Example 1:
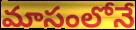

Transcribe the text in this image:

మాసంలోనే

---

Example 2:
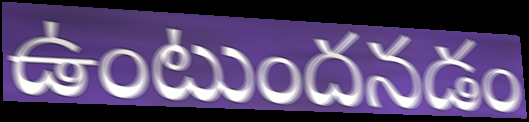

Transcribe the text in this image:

ఉంటుందనడం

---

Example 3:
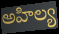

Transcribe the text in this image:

అహిల్య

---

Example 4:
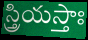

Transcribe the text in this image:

స్త్రియస్తాః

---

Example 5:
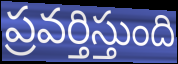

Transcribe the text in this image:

ప్రవర్తిస్తుంది